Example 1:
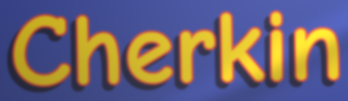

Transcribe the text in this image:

Cherkin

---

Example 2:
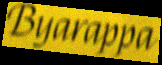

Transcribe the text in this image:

Byarappa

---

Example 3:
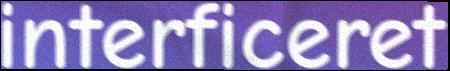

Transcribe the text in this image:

interficeret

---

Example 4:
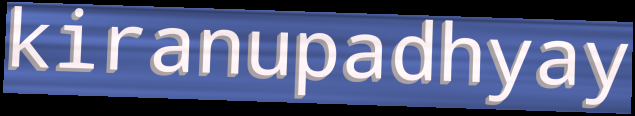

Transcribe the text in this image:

kiranupadhyay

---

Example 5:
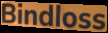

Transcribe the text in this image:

Bindloss